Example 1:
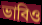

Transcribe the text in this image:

ভাবিও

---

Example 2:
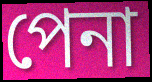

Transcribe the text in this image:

পেনা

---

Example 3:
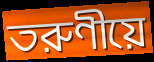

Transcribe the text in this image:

তৰুণীয়ে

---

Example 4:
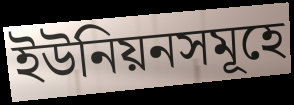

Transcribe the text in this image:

ইউনিয়নসমূহে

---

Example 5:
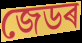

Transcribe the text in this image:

জেডৰ